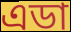
এডা